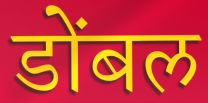
डोंबल